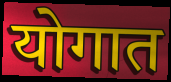
योगात